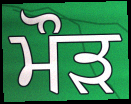
ਮੌਡ਼